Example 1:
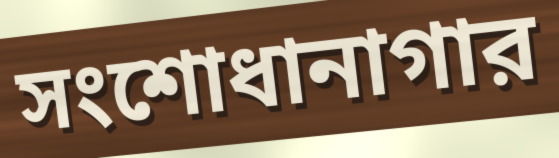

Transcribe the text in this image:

সংশোধানাগার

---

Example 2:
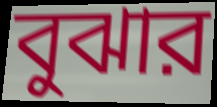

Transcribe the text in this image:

বুঝার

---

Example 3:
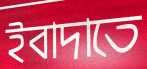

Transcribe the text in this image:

ইবাদাতে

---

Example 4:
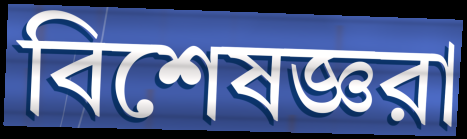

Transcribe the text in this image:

বিশেষজ্ঞরা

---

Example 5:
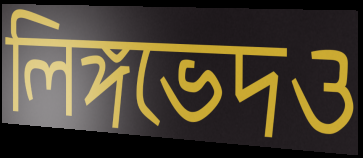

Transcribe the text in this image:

লিঙ্গভেদও